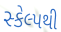
સ્કેલ્પથી